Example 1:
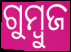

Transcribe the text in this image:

ଗୁମ୍ବୁଜ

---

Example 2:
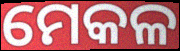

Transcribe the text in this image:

ମେକଳ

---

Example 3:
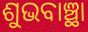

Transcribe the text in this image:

ଶୁଭବାଞ୍ଛା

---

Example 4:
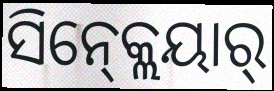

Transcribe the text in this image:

ସିନ୍କ୍ଲେୟାର୍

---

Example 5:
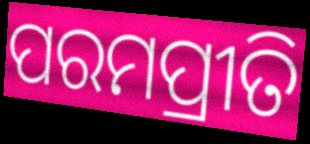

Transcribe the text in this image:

ପରମପ୍ରୀତି